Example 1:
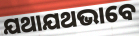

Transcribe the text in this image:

ଯଥାଯଥଭାବେ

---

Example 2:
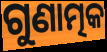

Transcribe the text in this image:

ଗୁଣାତ୍ମକ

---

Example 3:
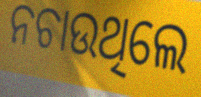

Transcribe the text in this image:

ନଚାଉଥିଲେ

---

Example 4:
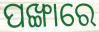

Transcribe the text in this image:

ପଙ୍ଖାରେ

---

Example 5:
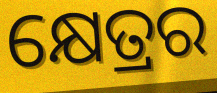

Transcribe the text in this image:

କ୍ଷେତ୍ରର